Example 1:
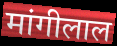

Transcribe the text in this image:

मांगीलाल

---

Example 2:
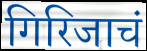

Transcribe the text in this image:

गिरिजाचं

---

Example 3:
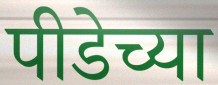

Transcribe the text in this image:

पीडेच्या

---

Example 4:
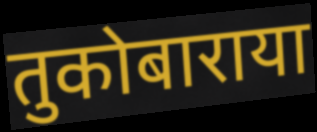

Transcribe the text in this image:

तुकोबाराया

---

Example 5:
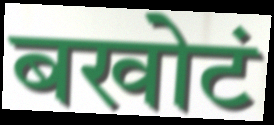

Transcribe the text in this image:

बखोटं